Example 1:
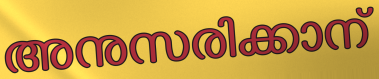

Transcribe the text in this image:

അനുസരിക്കാന്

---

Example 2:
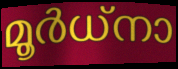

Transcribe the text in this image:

മൂർധ്നാ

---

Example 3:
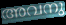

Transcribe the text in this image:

അവനു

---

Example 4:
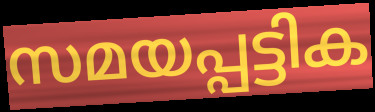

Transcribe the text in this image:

സമയപ്പട്ടിക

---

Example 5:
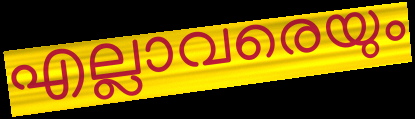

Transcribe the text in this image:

എല്ലാവരെയും